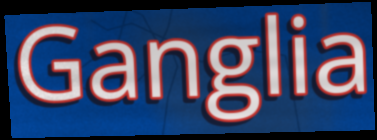
Ganglia